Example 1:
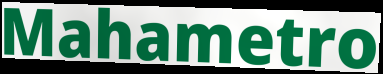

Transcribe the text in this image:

Mahametro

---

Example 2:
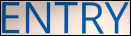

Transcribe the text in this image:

ENTRY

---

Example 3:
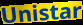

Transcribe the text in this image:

Unistar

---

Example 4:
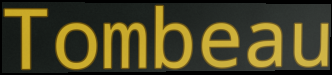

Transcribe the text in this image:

Tombeau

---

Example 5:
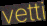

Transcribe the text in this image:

vetti